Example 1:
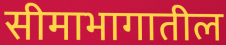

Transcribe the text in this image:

सीमाभागातील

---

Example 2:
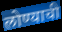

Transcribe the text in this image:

लोण्याची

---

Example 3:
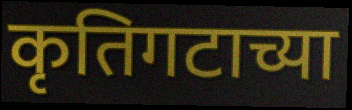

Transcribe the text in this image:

कृतिगटाच्या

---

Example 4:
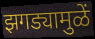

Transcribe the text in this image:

झगड्यामुळें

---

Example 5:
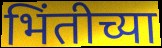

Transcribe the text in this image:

भिंतीच्या